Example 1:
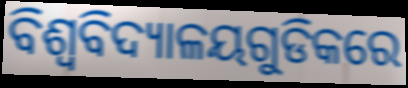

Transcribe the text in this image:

ବିଶ୍ୱବିଦ୍ୟାଳୟଗୁଡିକରେ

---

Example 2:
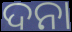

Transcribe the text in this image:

ଦନା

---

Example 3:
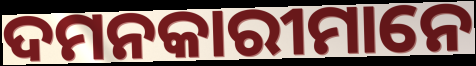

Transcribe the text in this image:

ଦମନକାରୀମାନେ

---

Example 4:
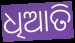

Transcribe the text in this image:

ଧିଆତି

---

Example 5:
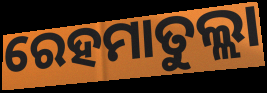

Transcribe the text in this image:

ରେହମାତୁଲ୍ଲା